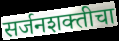
सर्जनशक्तीचा